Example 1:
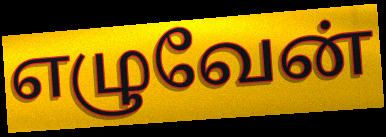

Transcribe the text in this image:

எழுவேன்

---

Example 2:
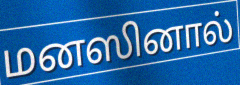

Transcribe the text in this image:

மனஸினால்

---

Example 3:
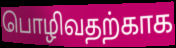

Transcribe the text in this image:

பொழிவதற்காக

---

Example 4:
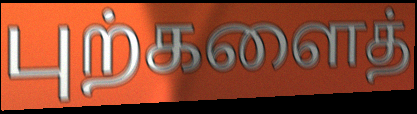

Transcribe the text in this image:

புற்களைத்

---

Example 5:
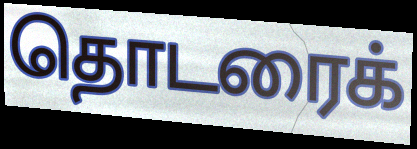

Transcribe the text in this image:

தொடரைக்